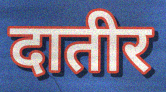
दातीर